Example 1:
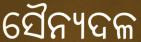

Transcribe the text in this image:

ସୈନ୍ୟଦଳ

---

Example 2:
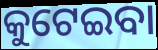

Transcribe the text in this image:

କୁଟେଇବା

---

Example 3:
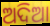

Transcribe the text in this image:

ଅଦିଆ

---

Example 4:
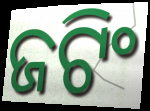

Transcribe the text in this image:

ଜଟିଂ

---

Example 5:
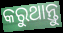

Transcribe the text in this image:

କରୁଥାନ୍ତୁ